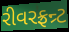
રીવરફ્રન્ર્ટ